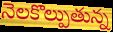
నెలకొల్పుతున్న